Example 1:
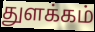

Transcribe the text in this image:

துளக்கம்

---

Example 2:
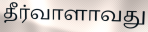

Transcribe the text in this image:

தீர்வாளாவது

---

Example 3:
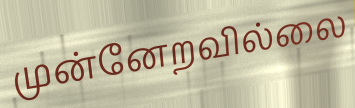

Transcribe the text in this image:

முன்னேறவில்லை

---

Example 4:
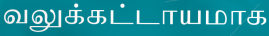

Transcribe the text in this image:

வலுக்கட்டாயமாக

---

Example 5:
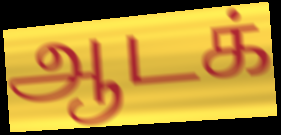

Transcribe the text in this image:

ஆடக்